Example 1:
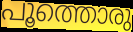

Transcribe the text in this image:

പൂത്തൊരു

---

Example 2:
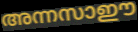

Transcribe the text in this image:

അന്നസാഈ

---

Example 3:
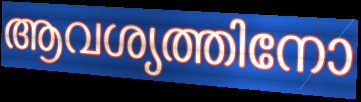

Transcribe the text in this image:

ആവശ്യത്തിനോ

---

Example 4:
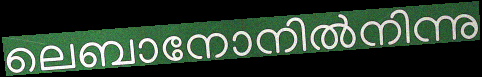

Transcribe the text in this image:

ലെബാനോനിൽനിന്നു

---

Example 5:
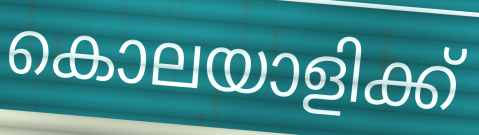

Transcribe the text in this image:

കൊലയാളിക്ക്